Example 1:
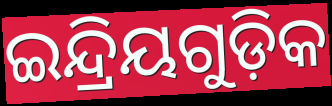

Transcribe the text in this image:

ଇନ୍ଦ୍ରିୟଗୁଡ଼ିକ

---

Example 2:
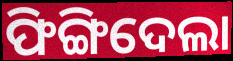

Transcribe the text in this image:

ଫିଙ୍ଗିଦେଲା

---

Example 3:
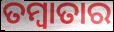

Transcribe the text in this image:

ତମ୍ବାତାର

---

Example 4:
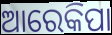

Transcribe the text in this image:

ଆରେକିପା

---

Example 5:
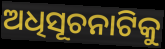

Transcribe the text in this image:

ଅଧିସୂଚନାଟିକୁ